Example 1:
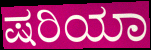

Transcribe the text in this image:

ಷರಿಯಾ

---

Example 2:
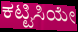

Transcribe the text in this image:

ಕಟ್ಟಿಸಿಯೇ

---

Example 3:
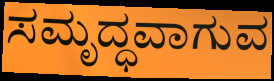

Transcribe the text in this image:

ಸಮೃದ್ಧವಾಗುವ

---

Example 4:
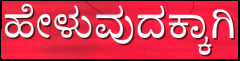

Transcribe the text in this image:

ಹೇಳುವುದಕ್ಕಾಗಿ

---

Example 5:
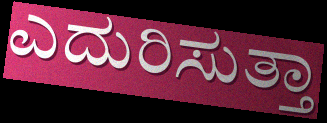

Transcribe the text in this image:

ಎದುರಿಸುತ್ತಾ